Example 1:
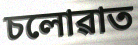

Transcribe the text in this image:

চলোৱাত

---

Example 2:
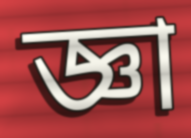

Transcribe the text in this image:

জ্ঞা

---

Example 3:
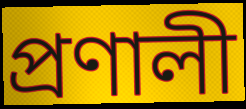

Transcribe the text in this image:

প্ৰণালী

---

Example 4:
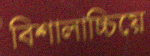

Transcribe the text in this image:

বিশালাচ্চিয়ে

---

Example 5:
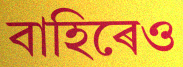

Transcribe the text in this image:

বাহিৰেও